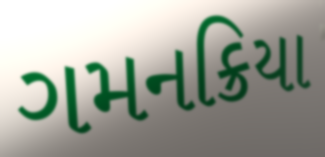
ગમનક્રિયા